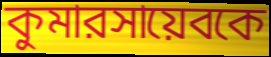
কুমারসায়েবকে